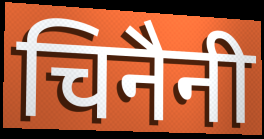
चिनैनी